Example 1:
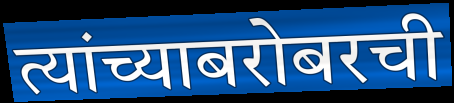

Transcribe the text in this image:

त्यांच्याबरोबरची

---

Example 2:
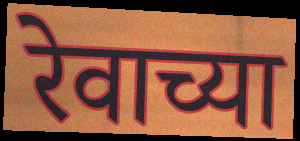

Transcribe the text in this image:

रेवाच्या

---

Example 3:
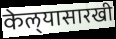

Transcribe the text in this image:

केल्यासारखी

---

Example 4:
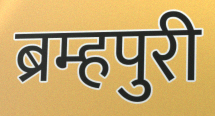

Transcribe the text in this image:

ब्रम्हपुरी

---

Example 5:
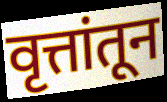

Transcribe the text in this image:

वृत्तांतून